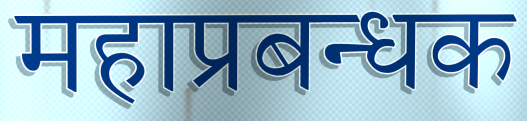
महाप्रबन्धक